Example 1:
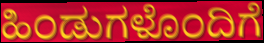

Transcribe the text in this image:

ಹಿಂಡುಗಳೊಂದಿಗೆ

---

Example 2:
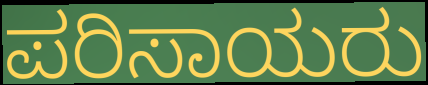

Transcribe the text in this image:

ಪರಿಸಾಯರು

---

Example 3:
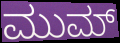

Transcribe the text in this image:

ಮುಮ್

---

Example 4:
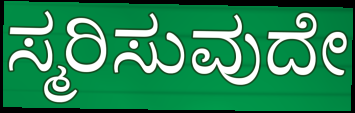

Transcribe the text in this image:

ಸ್ಮರಿಸುವುದೇ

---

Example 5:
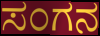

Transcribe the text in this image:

ಸಂಗನ